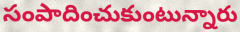
సంపాదించుకుంటున్నారు